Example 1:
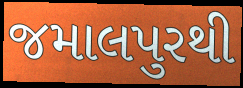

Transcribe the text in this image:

જમાલપુરથી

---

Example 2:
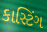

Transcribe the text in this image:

કાસ્ટિંગ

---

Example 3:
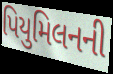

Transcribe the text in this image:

પિયુમિલનની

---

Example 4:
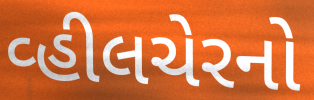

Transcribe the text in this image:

વ્હીલચેરનો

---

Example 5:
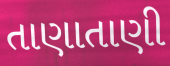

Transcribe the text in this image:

તાણાતાણી